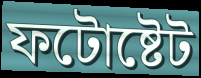
ফটোষ্টেট